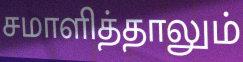
சமாளித்தாலும்